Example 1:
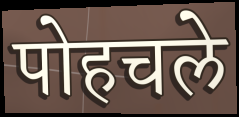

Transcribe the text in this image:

पोहचले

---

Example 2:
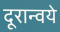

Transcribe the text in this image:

दूरान्वये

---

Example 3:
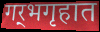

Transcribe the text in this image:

गर्भगृहात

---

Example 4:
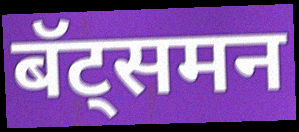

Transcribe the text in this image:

बॅट्समन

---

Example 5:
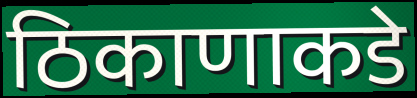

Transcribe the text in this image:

ठिकाणाकडे